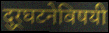
दुर्घटनेविषयी